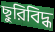
ছুরিবিদ্ধ